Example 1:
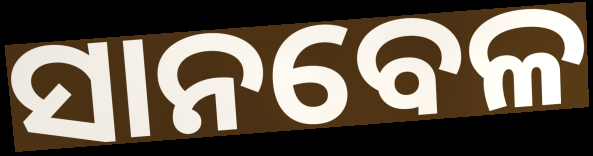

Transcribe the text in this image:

ସାନବେଳ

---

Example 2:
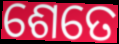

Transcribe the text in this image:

ଶେତେ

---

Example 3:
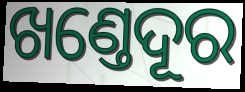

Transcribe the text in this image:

ଖଣ୍ତେଦୂର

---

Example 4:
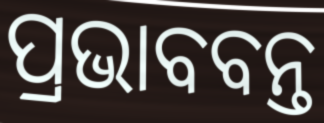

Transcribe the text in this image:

ପ୍ରଭାବବନ୍ତ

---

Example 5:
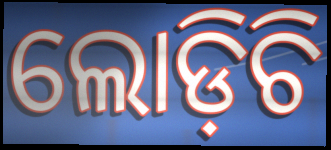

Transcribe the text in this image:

ଲୋଡ଼ିଚି